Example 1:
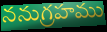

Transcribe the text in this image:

ననుగ్రహము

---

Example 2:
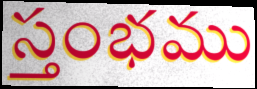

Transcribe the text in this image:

స్తంభము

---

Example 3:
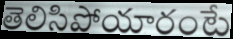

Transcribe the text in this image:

తెలిసిపోయారంటే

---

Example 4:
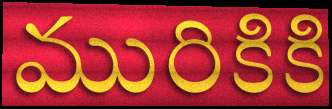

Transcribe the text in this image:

మురికికి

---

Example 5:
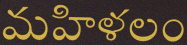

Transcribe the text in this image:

మహిళలం